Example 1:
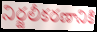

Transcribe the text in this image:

నిర్జలీకరణానికి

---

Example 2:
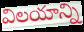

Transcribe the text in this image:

విలయాన్ని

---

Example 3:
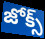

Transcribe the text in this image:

జోక్స్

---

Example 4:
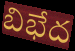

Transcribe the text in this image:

బిభేద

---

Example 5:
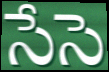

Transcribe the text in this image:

సేసె